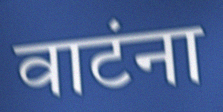
वाटंना